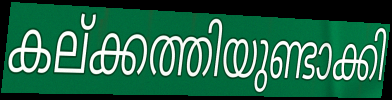
കല്ക്കത്തിയുണ്ടാക്കി